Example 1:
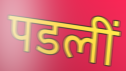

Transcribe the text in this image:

पडलीं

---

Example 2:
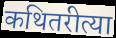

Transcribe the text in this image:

कथितरीत्या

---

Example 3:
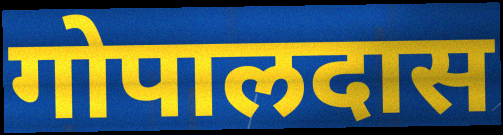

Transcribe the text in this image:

गोपालदास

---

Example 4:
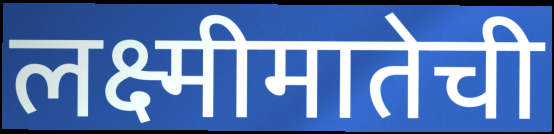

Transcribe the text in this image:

लक्ष्मीमातेची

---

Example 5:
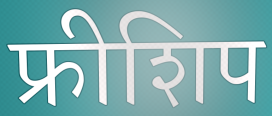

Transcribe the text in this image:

फ्रीशिप